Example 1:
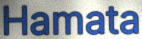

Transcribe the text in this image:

Hamata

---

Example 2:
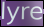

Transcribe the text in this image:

Iyre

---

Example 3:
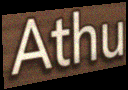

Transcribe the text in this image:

Athu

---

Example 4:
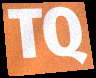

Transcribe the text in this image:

TQ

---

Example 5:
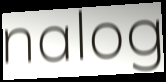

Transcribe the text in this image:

nalog